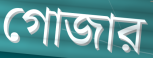
গোজার